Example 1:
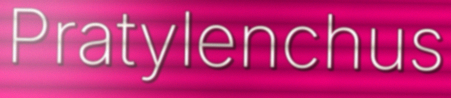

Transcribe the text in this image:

Pratylenchus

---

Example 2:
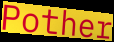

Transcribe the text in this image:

Pother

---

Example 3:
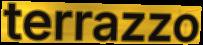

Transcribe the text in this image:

terrazzo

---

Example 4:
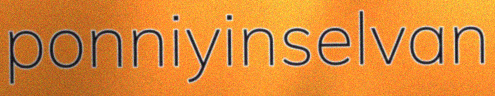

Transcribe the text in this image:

ponniyinselvan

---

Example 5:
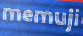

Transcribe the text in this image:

memuji